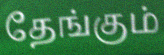
தேங்கும்